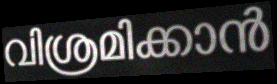
വിശ്രമിക്കാൻ